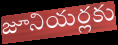
జూనియర్లకు